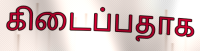
கிடைப்பதாக